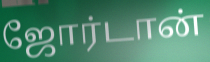
ஜோர்டான்